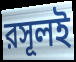
রসূলই